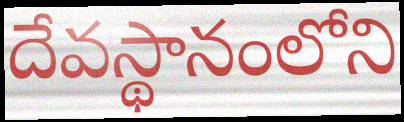
దేవస్థానంలోని